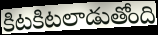
కిటకిటలాడుతోంది